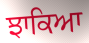
ਝਾਕਿਆ